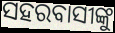
ସହରବାସୀଙ୍କୁ